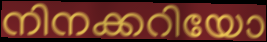
നിനക്കറിയോ